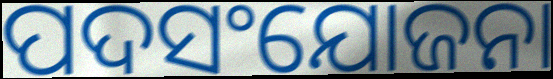
ପଦସଂଯୋଜନା